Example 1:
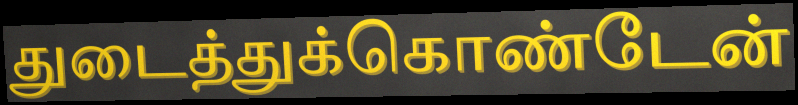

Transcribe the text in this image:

துடைத்துக்கொண்டேன்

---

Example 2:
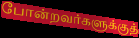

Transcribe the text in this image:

போன்றவர்களுக்குத்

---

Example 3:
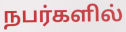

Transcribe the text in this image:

நபர்களில்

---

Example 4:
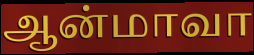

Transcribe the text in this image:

ஆன்மாவா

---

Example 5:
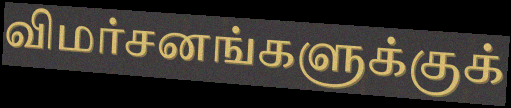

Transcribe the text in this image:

விமர்சனங்களுக்குக்